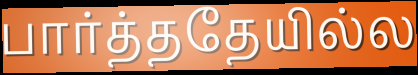
பார்த்ததேயில்ல